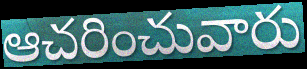
ఆచరించువారు